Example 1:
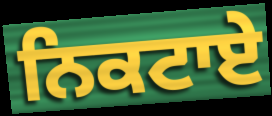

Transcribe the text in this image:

ਨਿਕਟਾਏ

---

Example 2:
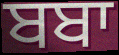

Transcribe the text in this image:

ਬਬਾ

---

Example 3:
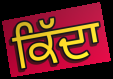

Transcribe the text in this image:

ਕਿੱਦਾ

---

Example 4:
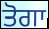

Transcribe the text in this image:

ਤੋਗਾ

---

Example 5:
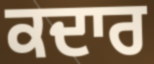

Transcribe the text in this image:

ਕਦਾਰ